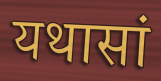
यथासां